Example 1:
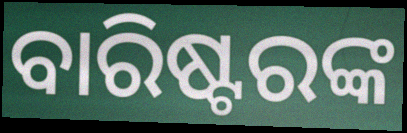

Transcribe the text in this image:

ବାରିଷ୍ଟରଙ୍କ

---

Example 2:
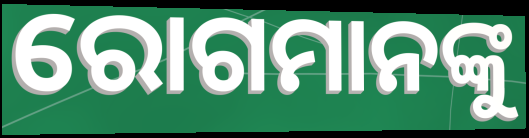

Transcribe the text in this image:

ରୋଗମାନଙ୍କୁ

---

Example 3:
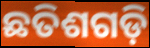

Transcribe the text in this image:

ଛତିଶଗଡ଼ି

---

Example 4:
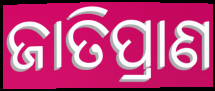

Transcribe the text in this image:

ଜାତିପ୍ରାଣ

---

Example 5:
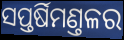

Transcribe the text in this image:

ସପ୍ତର୍ଷିମଣ୍ତଳର